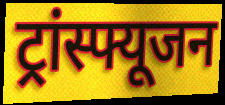
ट्रांस्फ्यूजन